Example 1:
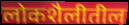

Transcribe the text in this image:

लोकशैलीतील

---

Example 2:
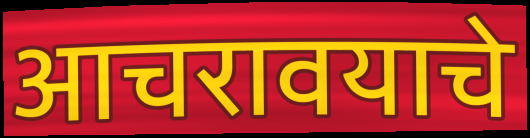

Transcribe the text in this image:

आचरावयाचे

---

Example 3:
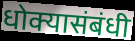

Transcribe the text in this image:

धोक्यासंबंधी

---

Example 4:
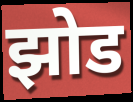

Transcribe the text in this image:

झोड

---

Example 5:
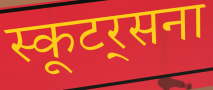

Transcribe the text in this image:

स्कूटर्सना